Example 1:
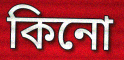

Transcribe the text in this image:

কিনো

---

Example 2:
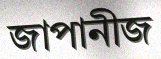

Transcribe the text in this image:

জাপানীজ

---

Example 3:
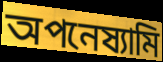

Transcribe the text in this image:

অপনেষ্যামি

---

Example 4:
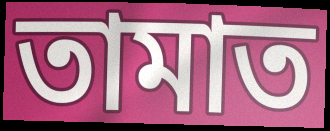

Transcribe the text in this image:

তামাত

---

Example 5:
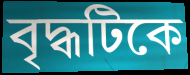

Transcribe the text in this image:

বৃদ্ধটিকে